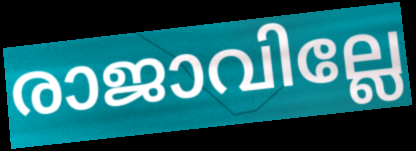
രാജാവില്ലേ